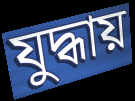
যুদ্ধায়